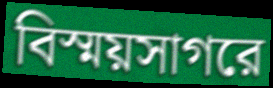
বিস্ময়সাগরে